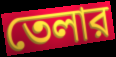
তেলার